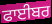
ਫਾਈਬਰ